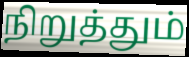
நிறுத்தும்